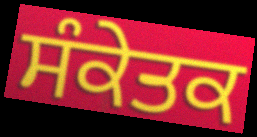
ਸੰਕੇਤਕ